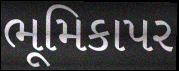
ભૂમિકાપર